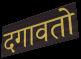
दगावतो